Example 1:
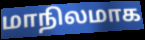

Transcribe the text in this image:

மாநிலமாக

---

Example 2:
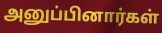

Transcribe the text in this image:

அனுப்பினார்கள்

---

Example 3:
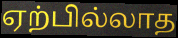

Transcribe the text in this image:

ஏற்பில்லாத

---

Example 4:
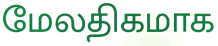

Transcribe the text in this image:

மேலதிகமாக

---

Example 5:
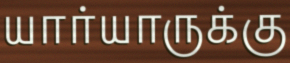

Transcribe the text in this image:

யார்யாருக்கு